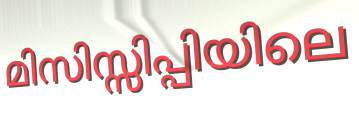
മിസിസ്സിപ്പിയിലെ